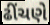
ઢીંચણે